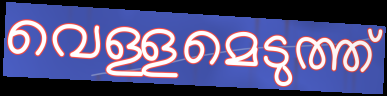
വെള്ളമെടുത്ത്